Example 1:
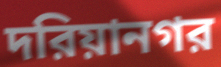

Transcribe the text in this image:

দরিয়ানগর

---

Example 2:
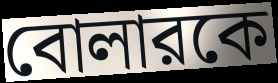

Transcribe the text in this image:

বোলারকে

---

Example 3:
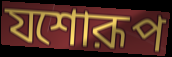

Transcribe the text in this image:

যশোরূপ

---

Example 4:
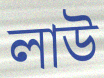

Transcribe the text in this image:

লাউ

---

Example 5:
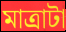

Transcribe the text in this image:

মাত্রাটা